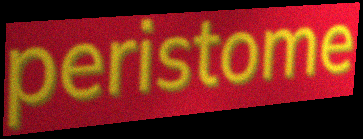
peristome